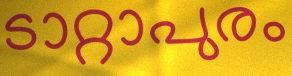
ടാറ്റാപുരം